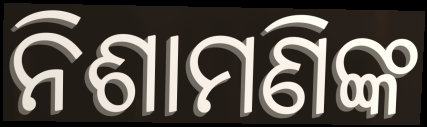
ନିଶାମଣିଙ୍କ